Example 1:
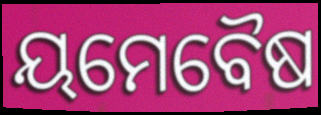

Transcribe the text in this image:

ୟମେବୈଷ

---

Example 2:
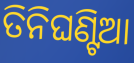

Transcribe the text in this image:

ତିନିଘଣ୍ଟିଆ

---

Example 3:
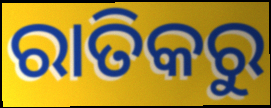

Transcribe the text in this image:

ରାତିକରୁ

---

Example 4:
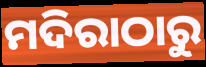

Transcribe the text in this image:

ମଦିରାଠାରୁ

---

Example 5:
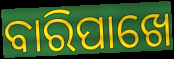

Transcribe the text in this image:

ବାରିପାଖେ